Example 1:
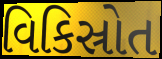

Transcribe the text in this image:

વિકિસ્રોત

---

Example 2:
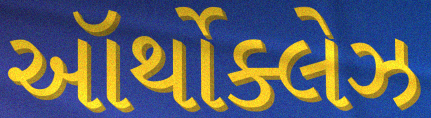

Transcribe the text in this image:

ઑર્થોક્લેઝ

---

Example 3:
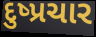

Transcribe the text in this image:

દુષ્પ્રચાર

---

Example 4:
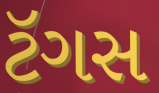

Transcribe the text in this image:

ટૅગસ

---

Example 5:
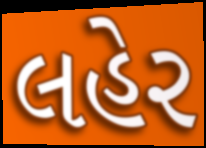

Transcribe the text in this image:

લહેર